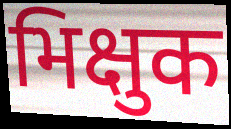
भिक्षुक